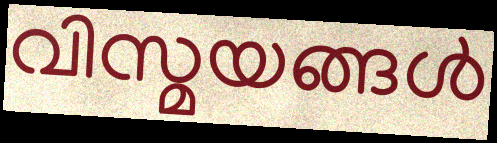
വിസ്മയങ്ങൾ